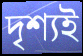
দৃশ্যই